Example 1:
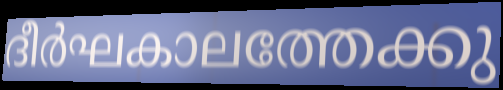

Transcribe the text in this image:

ദീർഘകാലത്തേക്കു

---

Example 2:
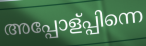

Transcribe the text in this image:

അപ്പോള്പ്പിന്നെ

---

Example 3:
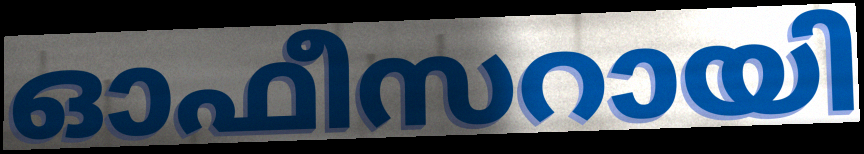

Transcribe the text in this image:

ഓഫീസറായി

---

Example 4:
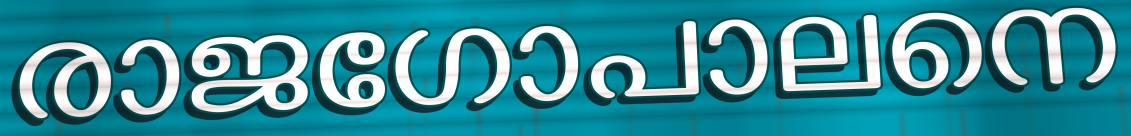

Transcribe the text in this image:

രാജഗോപാലനെ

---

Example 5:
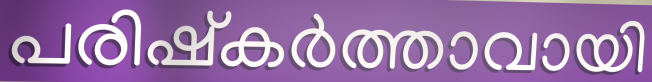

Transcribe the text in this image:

പരിഷ്കർത്താവായി